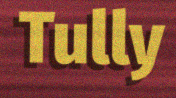
Tully